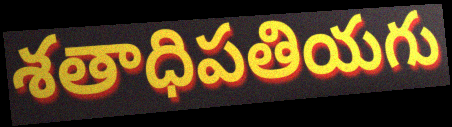
శతాధిపతియగు